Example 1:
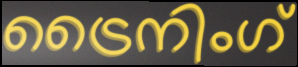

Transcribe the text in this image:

ട്രൈനിംഗ്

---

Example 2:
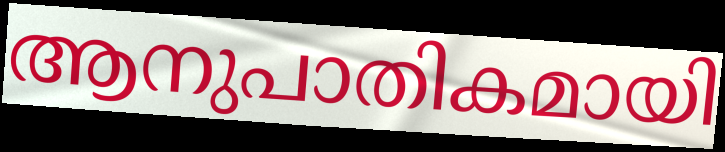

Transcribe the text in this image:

ആനുപാതികമായി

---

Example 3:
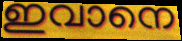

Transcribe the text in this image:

ഇവാനെ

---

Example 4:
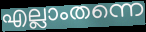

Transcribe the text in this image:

എല്ലാംതന്നെ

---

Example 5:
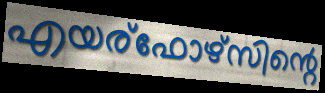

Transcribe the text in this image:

എയര്ഫോഴ്സിന്റെ